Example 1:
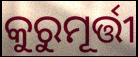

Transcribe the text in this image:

କୁରୁମୂର୍ତ୍ତୀ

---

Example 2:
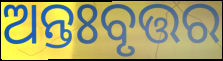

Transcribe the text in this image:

ଅନ୍ତଃବୃତ୍ତର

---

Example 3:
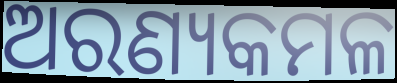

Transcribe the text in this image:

ଅରଣ୍ୟକମଳ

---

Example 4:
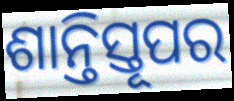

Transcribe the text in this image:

ଶାନ୍ତିସ୍ତୂପର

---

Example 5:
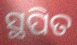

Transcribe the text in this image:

ସ୍ଥପିତ